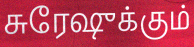
சுரேஷுக்கும்